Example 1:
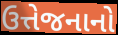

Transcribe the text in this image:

ઉત્તેજનાનો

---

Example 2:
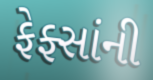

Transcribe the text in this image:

ફેફ્સાંની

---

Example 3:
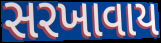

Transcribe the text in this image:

સરખાવાય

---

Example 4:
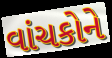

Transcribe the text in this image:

વાંચકોને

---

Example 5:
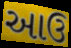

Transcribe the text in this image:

આઉ